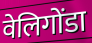
वेलिगोंडा